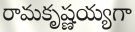
రామకృష్ణయ్యగా